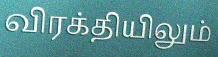
விரக்தியிலும்